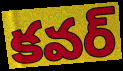
కవర్